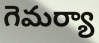
గెమర్యా